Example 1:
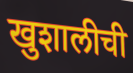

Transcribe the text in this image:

खुशालीची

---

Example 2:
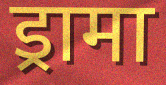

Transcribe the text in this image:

ड्रामा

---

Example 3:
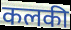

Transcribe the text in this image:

कलकी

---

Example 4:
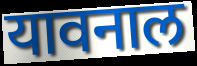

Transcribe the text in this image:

यावनाल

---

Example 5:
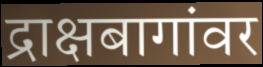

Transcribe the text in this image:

द्राक्षबागांवर